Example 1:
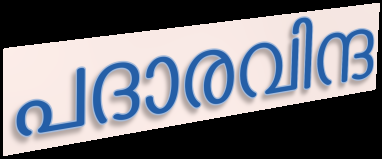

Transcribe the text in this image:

പദാരവിന്ദ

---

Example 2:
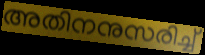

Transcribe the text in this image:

അതിനനുസരിച്ച്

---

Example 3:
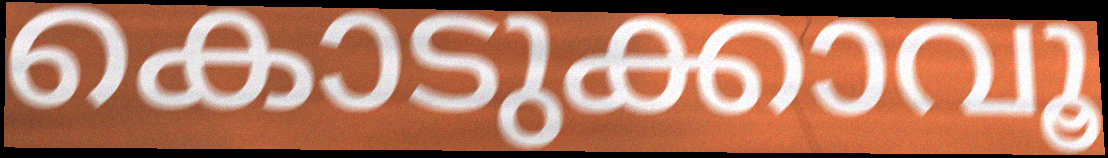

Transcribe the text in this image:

കൊടുക്കാവൂ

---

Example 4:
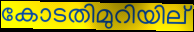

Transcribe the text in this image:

കോടതിമുറിയില്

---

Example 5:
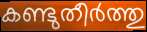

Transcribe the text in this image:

കണ്ടുതീർത്തു